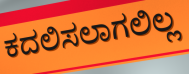
ಕದಲಿಸಲಾಗಲಿಲ್ಲ